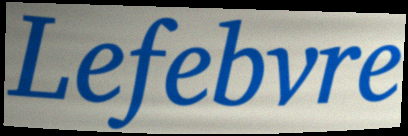
Lefebvre